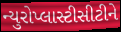
ન્યુરોપ્લાસ્ટીસીટીને